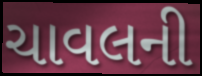
ચાવલની